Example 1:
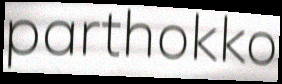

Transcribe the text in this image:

parthokko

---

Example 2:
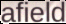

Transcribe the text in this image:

afield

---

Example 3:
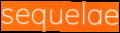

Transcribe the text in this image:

sequelae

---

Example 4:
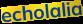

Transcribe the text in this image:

echolalia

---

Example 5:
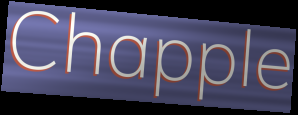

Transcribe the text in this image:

Chapple